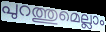
പുറത്തുമെല്ലാം